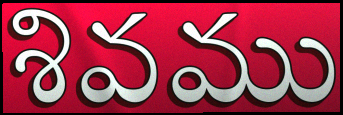
శివము